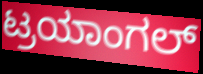
ಟ್ರಯಾಂಗಲ್